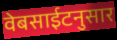
वेबसाईटनुसार